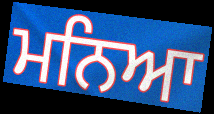
ਮਨਿਆ